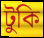
টুকি